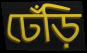
ঢেঁড়ি